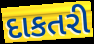
દાકતરી